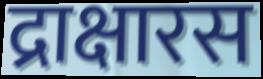
द्राक्षारस